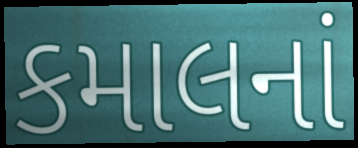
કમાલનાં